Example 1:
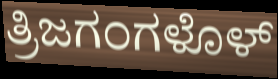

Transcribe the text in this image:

ತ್ರಿಜಗಂಗಳೊಳ್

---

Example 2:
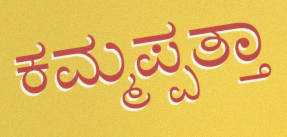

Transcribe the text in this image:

ಕಮ್ಮಪ್ಪತ್ತಾ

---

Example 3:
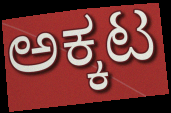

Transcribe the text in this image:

ಅಕ್ಕಟ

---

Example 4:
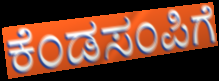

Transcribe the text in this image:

ಕೆಂಡಸಂಪಿಗೆ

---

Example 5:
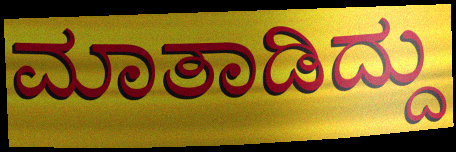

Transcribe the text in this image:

ಮಾತಾಡಿದ್ದು